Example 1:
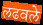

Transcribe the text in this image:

लढवले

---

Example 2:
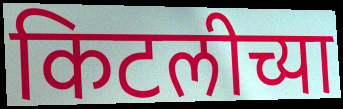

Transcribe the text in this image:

किटलीच्या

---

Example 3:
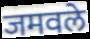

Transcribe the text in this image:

जमवले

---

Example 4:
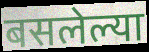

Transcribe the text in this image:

बसलेल्या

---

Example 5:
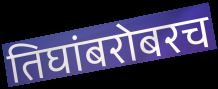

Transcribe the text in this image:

तिघांबरोबरच